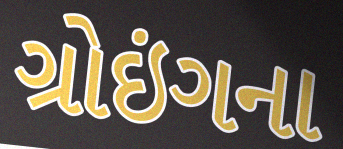
ગ્રોઇંગના